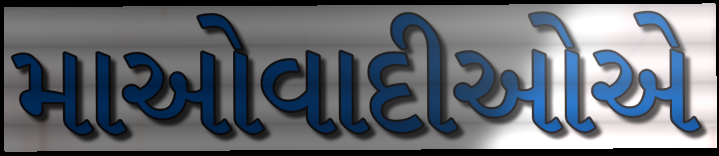
માઓવાદીઓએ